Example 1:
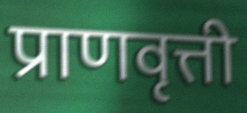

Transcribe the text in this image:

प्राणवृत्ती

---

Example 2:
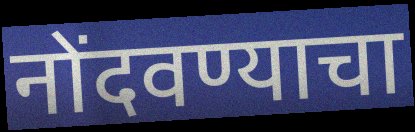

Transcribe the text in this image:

नोंदवण्याचा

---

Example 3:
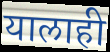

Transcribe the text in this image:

यालाही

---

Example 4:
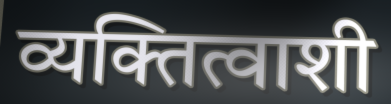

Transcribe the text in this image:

व्यक्तित्वाशी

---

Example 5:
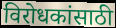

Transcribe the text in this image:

विरोधकांसाठी